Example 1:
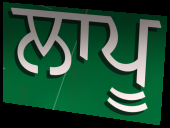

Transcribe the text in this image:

ਲਾਪੂ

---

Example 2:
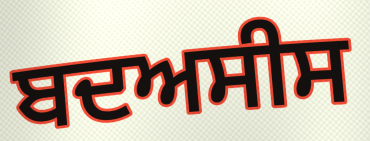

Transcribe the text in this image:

ਬਦਅਸੀਸ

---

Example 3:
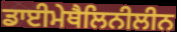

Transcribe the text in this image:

ਡਾਈਮੇਥੈਲਿਨੀਲੀਨ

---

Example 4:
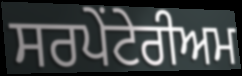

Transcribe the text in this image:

ਸਰਪੇਂਟੇਰੀਅਮ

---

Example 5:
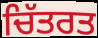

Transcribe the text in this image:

ਚਿੱਤਰਤ